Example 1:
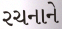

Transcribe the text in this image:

રચનાને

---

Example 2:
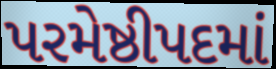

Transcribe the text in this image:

પરમેષ્ઠીપદમાં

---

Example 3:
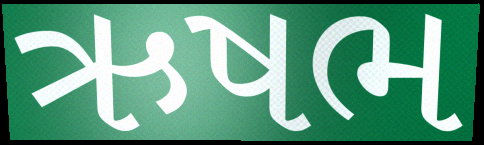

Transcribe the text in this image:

ઋષભ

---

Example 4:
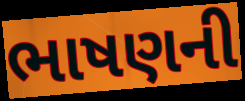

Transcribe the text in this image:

ભાષણની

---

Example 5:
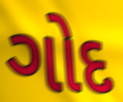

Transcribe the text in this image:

ગોદ